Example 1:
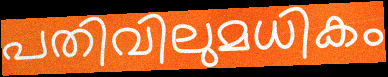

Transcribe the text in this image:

പതിവിലുമധികം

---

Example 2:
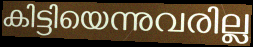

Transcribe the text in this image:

കിട്ടിയെന്നുവരില്ല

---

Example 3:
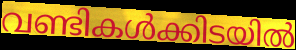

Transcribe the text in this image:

വണ്ടികൾക്കിടയിൽ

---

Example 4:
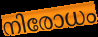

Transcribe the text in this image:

നിരോധം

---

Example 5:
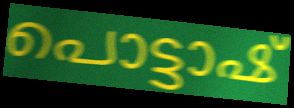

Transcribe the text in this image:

പൊട്ടാഷ്